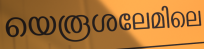
യെരൂശലേമിലെ